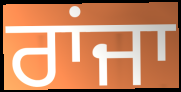
ਰਾਂਜਾ